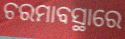
ଚରମାବସ୍ଥାରେ